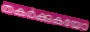
തകർക്കുകയോ